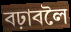
বঢ়াবলৈ